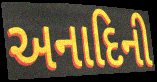
અનાદિની